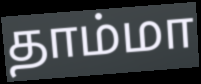
தாம்மா